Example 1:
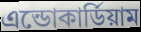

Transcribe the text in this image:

এন্ডোকার্ডিয়াম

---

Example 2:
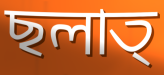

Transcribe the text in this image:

ছলাত্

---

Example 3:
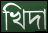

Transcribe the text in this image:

খিদা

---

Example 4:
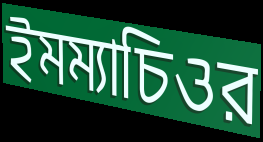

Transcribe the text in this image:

ইমম্যাচিওর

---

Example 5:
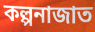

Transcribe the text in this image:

কল্পনাজাত